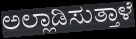
ಅಲ್ಲಾಡಿಸುತ್ತಾಳೆ